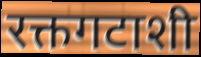
रक्तगटाशी